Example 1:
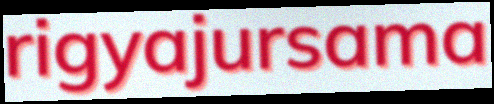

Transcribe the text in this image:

rigyajursama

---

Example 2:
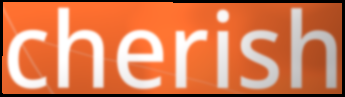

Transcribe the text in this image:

cherish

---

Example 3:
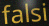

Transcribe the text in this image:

falsi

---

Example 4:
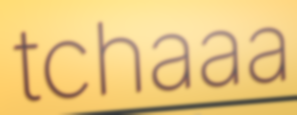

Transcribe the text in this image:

tchaaa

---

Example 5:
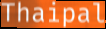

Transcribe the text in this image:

Thaipal